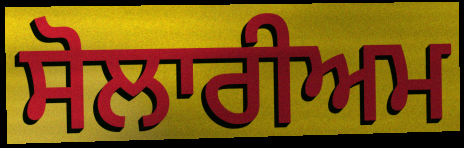
ਸੋਲਾਰੀਅਮ